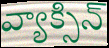
వ్యాక్సిన్